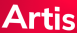
Artis